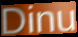
Dinu